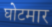
घोटमार